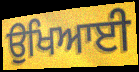
ਉਖਿਆਈ